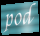
pod